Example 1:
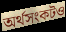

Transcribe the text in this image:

অর্থসংকটও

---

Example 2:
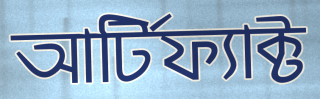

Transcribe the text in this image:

আর্টিফ্যাক্ট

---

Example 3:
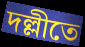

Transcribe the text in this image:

দল্লীতে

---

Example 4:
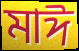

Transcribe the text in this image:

মাঈ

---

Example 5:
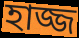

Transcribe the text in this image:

হাজ্জ